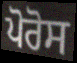
ਪੋਰੋਸ